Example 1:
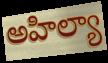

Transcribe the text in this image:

అహిల్యా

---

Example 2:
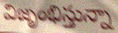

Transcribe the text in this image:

విజృంభిస్తున్నా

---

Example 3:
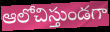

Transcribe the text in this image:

ఆలోచిస్తుండగా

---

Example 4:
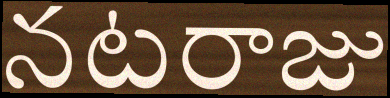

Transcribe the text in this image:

నటరాజు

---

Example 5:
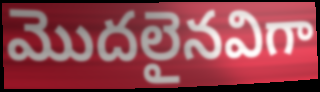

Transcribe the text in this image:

మొదలైనవిగా